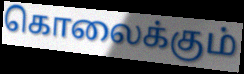
கொலைக்கும்